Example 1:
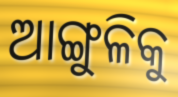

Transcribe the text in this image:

ଆଙ୍ଗୁଳିକୁ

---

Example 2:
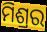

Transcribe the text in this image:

ମିଶ୍ରର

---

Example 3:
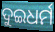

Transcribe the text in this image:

ଦୁଇଧର୍ମ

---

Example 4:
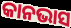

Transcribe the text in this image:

କାନଭାସ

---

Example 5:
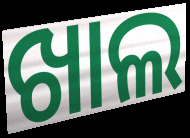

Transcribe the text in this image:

ଖାଲ